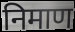
निमाण